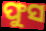
ଫୁସ